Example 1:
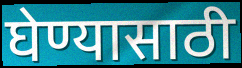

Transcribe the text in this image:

घेण्यासाठी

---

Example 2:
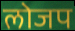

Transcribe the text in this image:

लोजप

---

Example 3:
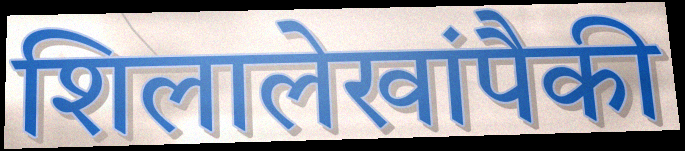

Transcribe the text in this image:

शिलालेखांपैकी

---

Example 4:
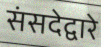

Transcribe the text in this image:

संसदेद्वारे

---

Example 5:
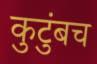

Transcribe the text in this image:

कुटुंबच